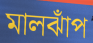
মালঝাঁপ